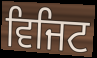
ਵਿਜਿਟ